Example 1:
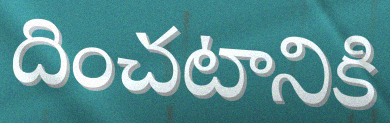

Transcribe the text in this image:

దించటానికి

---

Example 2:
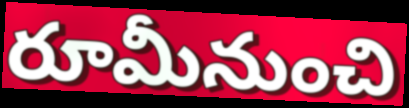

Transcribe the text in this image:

రూమీనుంచి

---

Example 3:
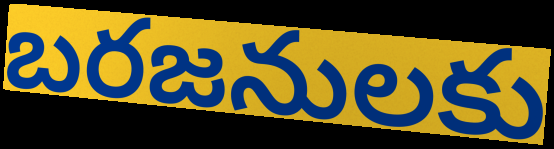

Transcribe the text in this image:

బరజనులకు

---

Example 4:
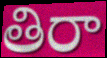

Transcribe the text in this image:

తిరా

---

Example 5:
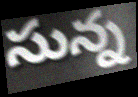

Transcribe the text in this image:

సున్న